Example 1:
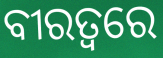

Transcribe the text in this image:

ବୀରତ୍ୱରେ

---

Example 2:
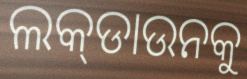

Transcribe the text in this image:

ଲକ୍‌ଡାଉନକୁ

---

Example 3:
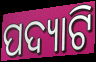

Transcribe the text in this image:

ପଦ୍ୟାଟି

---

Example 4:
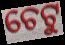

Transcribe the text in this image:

ଚେଟୁ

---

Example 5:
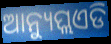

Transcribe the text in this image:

ଆନ୍ୟୁପ୍ଲଏଡି